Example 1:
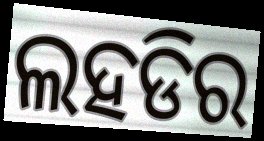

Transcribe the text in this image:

ଲହଡିର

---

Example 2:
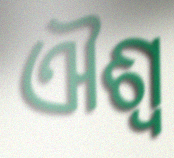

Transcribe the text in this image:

ଐଶ୍ୱ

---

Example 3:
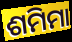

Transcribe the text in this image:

ଶମିମା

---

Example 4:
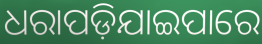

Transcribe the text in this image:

ଧରାପଡ଼ିଯାଇପାରେ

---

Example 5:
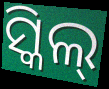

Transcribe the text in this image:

ସ୍କିଲ୍